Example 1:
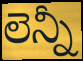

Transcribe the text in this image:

లెన్నీ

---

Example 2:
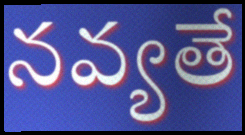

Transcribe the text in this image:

నవ్యతే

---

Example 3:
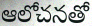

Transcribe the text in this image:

ఆలోచనతో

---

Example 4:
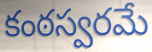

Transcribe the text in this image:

కంఠస్వరమే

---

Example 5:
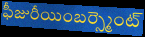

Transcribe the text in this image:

ఫీజురీయింబర్స్మెంట్